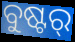
ବୁଷ୍ଟର୍